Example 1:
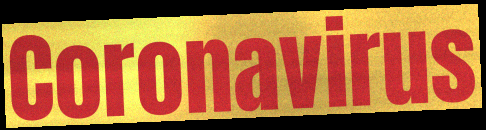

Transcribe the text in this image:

Coronavirus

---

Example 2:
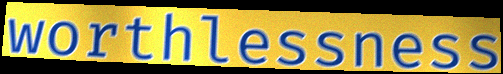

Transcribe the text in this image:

worthlessness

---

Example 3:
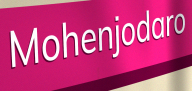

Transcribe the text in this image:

Mohenjodaro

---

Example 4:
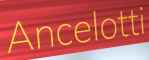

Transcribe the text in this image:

Ancelotti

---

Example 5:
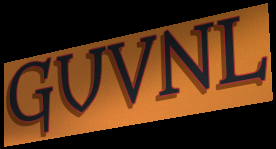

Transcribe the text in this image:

GUVNL